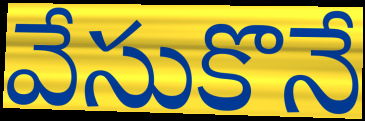
వేసుకొనే